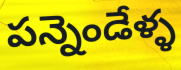
పన్నెండేళ్ళ